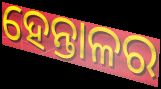
ହେନ୍ତାଳର